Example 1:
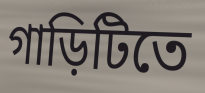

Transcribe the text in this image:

গাড়িটিতে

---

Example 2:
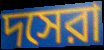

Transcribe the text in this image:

দসেরা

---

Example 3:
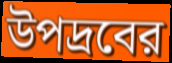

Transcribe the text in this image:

উপদ্রবের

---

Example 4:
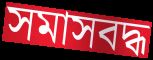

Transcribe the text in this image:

সমাসবদ্ধ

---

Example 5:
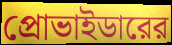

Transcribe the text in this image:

প্রোভাইডারের